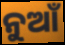
ନୁଆଁ